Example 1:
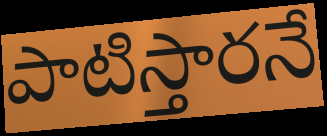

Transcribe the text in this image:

పాటిస్తారనే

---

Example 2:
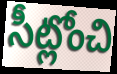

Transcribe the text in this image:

సీట్లోంచి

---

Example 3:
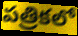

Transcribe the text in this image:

పత్రికలో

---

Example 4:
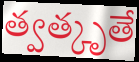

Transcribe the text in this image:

త్వత్కృతే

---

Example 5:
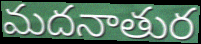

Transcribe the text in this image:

మదనాతుర